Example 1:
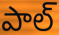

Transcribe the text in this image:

పాల్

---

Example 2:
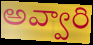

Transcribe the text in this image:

అవ్వారి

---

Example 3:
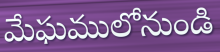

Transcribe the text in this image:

మేఘములోనుండి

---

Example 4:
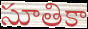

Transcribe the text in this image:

సూతికా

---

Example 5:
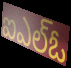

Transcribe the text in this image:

ఐఎల్ఓ